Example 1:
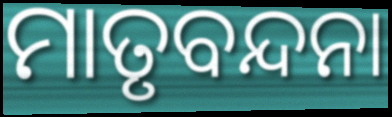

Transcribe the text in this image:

ମାତୃବନ୍ଦନା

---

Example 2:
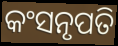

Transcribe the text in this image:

କଂସନୃପତି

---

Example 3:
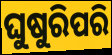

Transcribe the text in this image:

ଘୁଷୁରିପରି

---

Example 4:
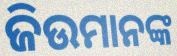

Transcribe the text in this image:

ଜିଉମାନଙ୍କ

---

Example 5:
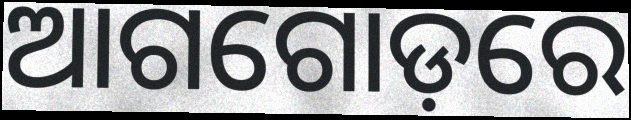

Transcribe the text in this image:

ଆଗଗୋଡ଼ରେ